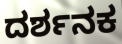
ದರ್ಶನಕ